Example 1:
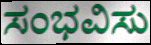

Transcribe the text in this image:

ಸಂಭವಿಸು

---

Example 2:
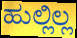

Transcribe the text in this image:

ಹುಲ್ಲಿಲ್ಲ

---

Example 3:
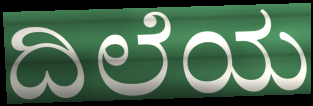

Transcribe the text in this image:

ದಿಲೆಯ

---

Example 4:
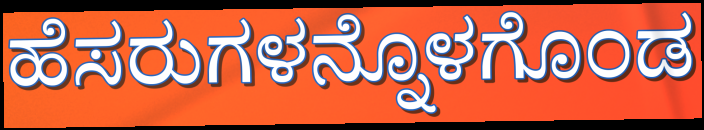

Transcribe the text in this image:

ಹೆಸರುಗಳನ್ನೊಳಗೊಂಡ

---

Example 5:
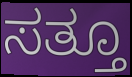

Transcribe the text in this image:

ಸತ್ತೂ